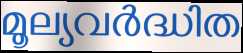
മൂല്യവർദ്ധിത